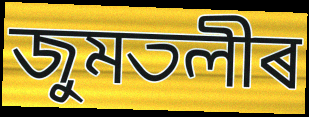
জুমতলীৰ